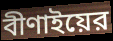
বীণাইয়ের